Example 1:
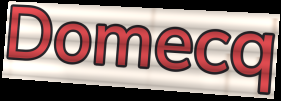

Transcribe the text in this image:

Domecq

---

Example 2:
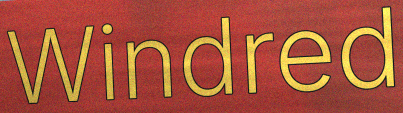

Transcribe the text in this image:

Windred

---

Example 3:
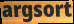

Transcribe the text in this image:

argsort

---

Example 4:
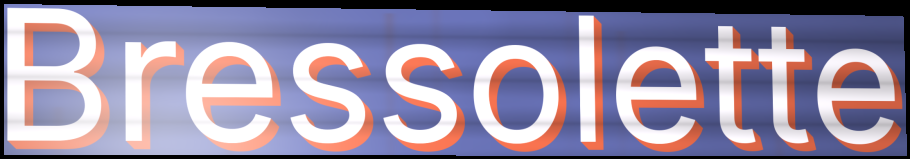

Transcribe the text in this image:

Bressolette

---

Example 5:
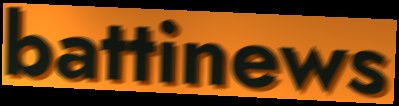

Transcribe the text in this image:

battinews